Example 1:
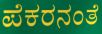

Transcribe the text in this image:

ಪೆಕರನಂತೆ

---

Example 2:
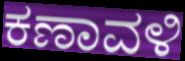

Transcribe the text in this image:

ಕಣಾವಳಿ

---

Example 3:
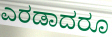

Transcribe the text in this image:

ಎರಡಾದರೂ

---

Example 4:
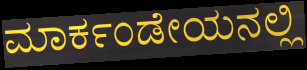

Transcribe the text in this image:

ಮಾರ್ಕಂಡೇಯನಲ್ಲಿ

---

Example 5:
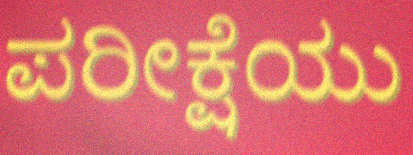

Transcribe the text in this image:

ಪರೀಕ್ಷೆಯು